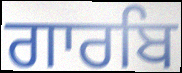
ਗਾਰਬਿ